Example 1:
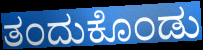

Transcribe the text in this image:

ತಂದುಕೊಂಡು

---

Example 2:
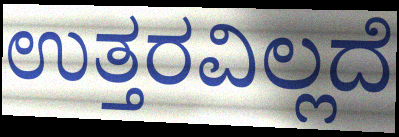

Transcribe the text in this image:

ಉತ್ತರವಿಲ್ಲದೆ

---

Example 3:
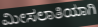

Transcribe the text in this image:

ಮೀಸಲಾತಿಯಾಗಿ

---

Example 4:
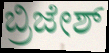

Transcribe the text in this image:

ಬ್ರಿಜೇಶ್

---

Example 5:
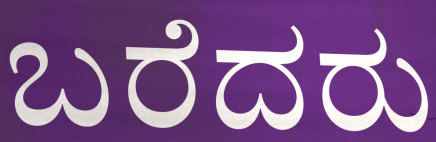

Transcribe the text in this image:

ಬರೆದರು